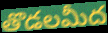
తొడలమీద